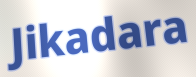
Jikadara